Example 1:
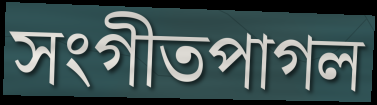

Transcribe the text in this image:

সংগীতপাগল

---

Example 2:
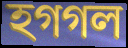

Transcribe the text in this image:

হগগল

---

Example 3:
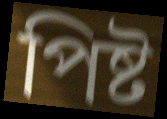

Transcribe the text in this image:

পিষ্ট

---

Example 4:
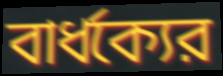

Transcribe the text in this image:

বার্ধক্যের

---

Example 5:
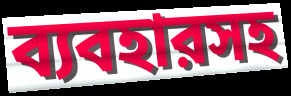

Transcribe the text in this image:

ব্যবহারসহ